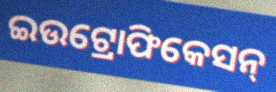
ଇଉଟ୍ରୋଫିକେସନ୍